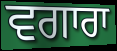
ਵਗਾਰਾ